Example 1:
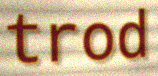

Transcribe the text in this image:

trod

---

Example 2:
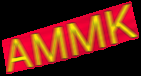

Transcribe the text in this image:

AMMK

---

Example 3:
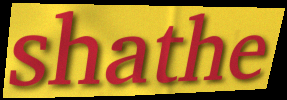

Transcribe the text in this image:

shathe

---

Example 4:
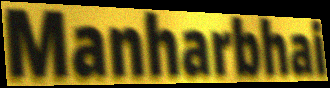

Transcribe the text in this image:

Manharbhai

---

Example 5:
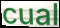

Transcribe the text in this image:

cual